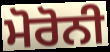
ਮੋਰੋਨੀ